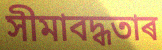
সীমাবদ্ধতাৰ